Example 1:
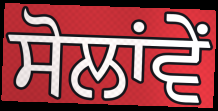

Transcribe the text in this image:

ਸੋਲਾਂਵੇਂ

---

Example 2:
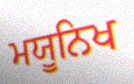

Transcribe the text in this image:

ਮਯੂਨਿਖ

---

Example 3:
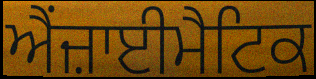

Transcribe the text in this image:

ਐਂਜ਼ਾਈਮੈਟਿਕ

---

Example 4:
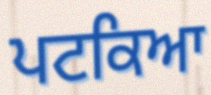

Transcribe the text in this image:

ਪਟਕਿਆ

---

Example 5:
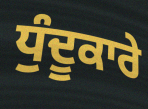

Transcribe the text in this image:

ਧੁੰਦੂਕਾਰੇ